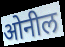
ओनील